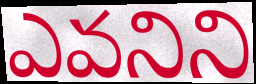
ఎవనిని